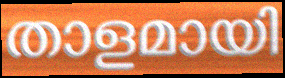
താളമായി